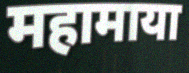
महामाया